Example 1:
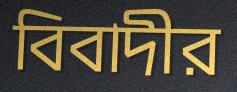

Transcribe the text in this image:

বিবাদীর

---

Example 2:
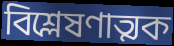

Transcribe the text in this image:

বিশ্লেষণাত্মক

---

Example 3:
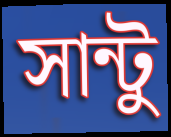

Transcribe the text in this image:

সান্টু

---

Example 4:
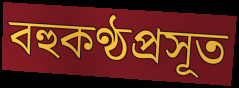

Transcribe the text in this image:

বহুকণ্ঠপ্রসূত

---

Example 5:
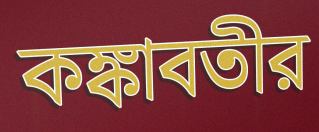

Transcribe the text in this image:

কঙ্কাবতীর